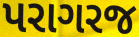
પરાગરજ